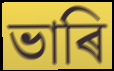
ভাৰি